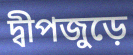
দ্বীপজুড়ে